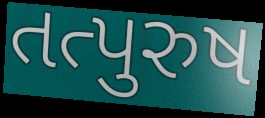
તત્પુરુષ